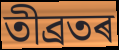
তীব্ৰতৰ